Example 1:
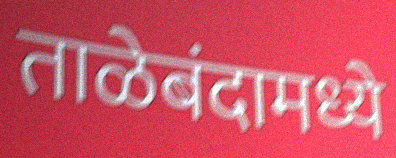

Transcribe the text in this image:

ताळेबंदामध्ये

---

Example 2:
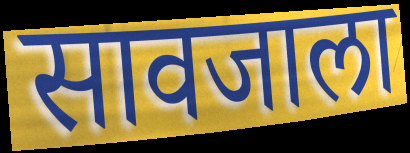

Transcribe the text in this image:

सावजाला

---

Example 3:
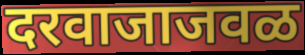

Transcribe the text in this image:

दरवाजाजवळ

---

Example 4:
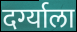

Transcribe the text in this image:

दर्ग्याला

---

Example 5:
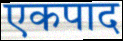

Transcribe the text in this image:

एकपाद